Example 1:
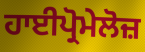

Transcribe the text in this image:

ਹਾਈਪ੍ਰੋਮੇਲੋਜ਼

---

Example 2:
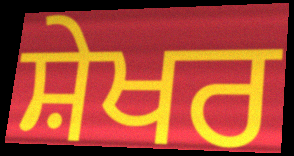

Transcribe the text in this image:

ਸ਼ੇਖਰ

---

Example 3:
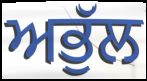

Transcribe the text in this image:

ਅਭੁੱਲ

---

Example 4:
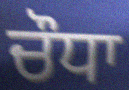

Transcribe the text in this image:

ਚੌਧਾ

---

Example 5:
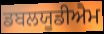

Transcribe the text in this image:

ਡਬਲਯੂਡੀਐਮ